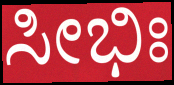
ಸೀಭಿಃ